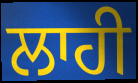
ਲਾਹੀ